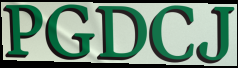
PGDCJ